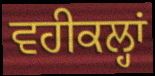
ਵਹੀਕਲ੍ਹਾਂ